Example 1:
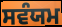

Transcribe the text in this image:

ਸਵੰਯਮ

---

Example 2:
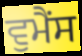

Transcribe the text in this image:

ਵੁਮੈਂਸ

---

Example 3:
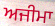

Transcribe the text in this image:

ਅਜੀਮਾ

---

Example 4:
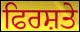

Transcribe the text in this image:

ਫਿਰਸ਼ਤੇ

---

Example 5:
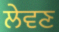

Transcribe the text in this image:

ਲੇਵਣ